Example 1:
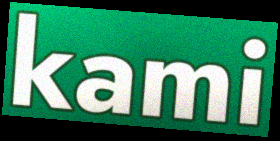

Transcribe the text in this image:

kami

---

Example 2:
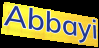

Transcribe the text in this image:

Abbayi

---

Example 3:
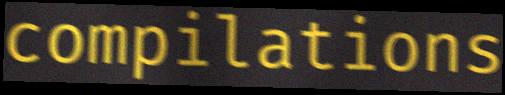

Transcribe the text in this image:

compilations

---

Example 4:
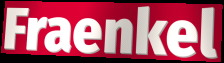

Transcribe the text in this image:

Fraenkel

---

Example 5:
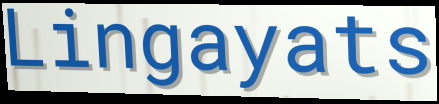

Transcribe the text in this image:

Lingayats